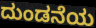
ದುಂಡನೆಯ